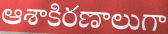
ఆశాకిరణాలుగా